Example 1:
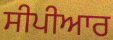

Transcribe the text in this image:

ਸੀਪੀਆਰ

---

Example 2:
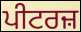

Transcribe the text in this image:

ਪੀਟਰਜ਼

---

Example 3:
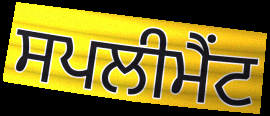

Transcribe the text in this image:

ਸਪਲੀਮੈਂਟ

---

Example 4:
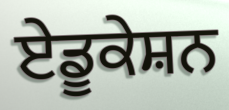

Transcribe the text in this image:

ਏਡੂਕੇਸ਼ਨ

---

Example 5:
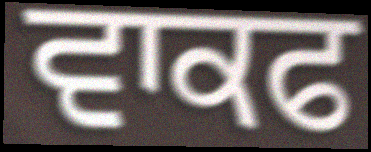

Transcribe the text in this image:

ਵਾਕਫ